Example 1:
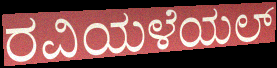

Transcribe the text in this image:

ರವಿಯಳೆಯಲ್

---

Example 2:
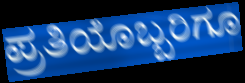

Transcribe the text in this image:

ಪ್ರತಿಯೊಬ್ಬರಿಗೂ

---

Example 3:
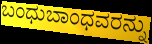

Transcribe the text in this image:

ಬಂಧುಬಾಂಧವರನ್ನು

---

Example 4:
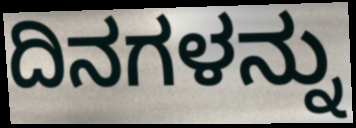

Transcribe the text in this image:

ದಿನಗಳನ್ನು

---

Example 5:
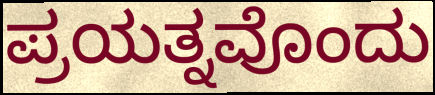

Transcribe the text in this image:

ಪ್ರಯತ್ನವೊಂದು